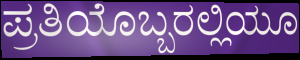
ಪ್ರತಿಯೊಬ್ಬರಲ್ಲಿಯೂ